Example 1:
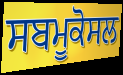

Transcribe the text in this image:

ਸਬਮੂਕੋਸਲ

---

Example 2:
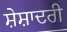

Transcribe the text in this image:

ਸ਼ੇਸ਼ਾਦਰੀ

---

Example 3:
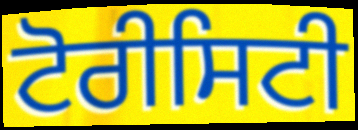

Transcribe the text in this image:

ਟੋਰੀਸਿਟੀ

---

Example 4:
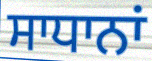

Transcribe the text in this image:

ਸਾਧਾਨਾਂ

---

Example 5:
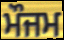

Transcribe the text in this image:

ਮੌਜਮ